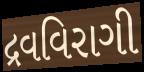
દ્રવવિરાગી